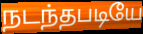
நடந்தபடியே